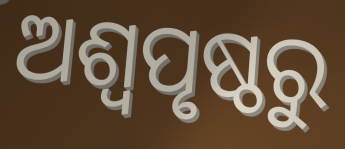
ଅଶ୍ଵପୃଷ୍ଠରୁ